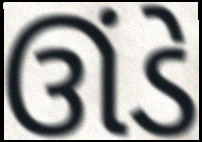
ઊંડે